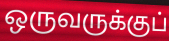
ஒருவருக்குப்